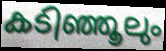
കടിഞ്ഞൂലും